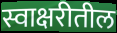
स्वाक्षरीतील